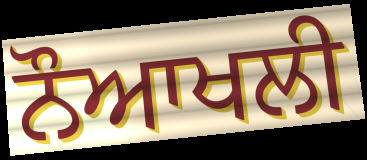
ਨੌਆਖਲੀ